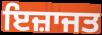
ਇਜ਼ਾਜਤ